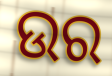
ଉର